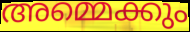
അമ്മെക്കും